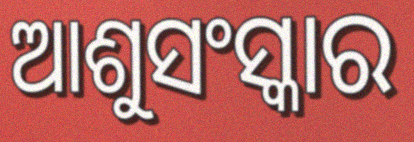
ଆଶୁସଂସ୍କାର